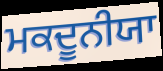
ਮਕਦੂਨੀਯਾ